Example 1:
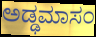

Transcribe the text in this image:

ಅಡ್ಢಮಾಸಂ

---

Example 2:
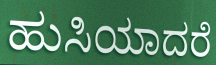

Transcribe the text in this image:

ಹುಸಿಯಾದರೆ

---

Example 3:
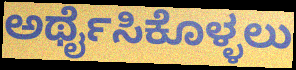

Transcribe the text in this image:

ಅರ್ಥೈಸಿಕೊಳ್ಳಲು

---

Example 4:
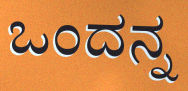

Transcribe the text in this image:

ಒಂದನ್ನ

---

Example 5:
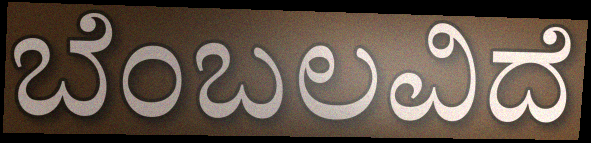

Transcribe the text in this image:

ಬೆಂಬಲವಿದೆ